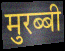
मुरब्बी